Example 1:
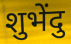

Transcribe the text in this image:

शुभेंदु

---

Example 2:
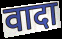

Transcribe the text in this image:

वादा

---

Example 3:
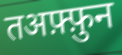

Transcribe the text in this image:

तअफ़्फ़ुन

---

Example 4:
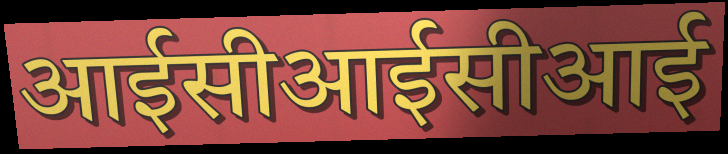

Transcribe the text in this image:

आईसीआईसीआई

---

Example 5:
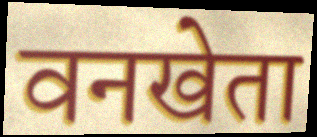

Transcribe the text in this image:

वनखेता